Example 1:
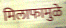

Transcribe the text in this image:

मिलाफामुळे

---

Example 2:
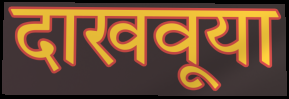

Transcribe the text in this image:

दाखवूया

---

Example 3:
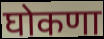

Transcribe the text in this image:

घोकणा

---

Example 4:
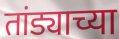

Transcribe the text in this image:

तांड्याच्या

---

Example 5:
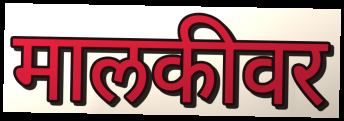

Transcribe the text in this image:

मालकीवर